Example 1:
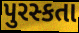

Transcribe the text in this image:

પુરસ્કતા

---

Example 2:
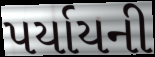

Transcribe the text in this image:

પર્યાયની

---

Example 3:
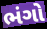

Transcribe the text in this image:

ભંગો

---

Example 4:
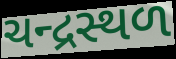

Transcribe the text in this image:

ચન્દ્રસ્થળ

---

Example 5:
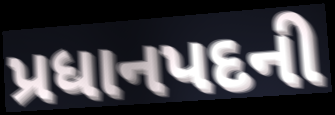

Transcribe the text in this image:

પ્રધાનપદની